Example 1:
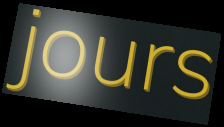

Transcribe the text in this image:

jours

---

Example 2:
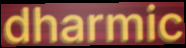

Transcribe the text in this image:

dharmic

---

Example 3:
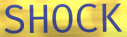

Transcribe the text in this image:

SHOCK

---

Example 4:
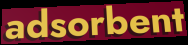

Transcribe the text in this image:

adsorbent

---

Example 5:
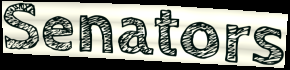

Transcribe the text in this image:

Senators